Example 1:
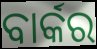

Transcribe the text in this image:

ବାର୍କର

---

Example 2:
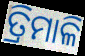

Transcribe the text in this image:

ତ୍ରିମାଳି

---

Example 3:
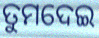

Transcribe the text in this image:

ତୁମଦେଇ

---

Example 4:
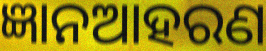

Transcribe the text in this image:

ଜ୍ଞାନଆହରଣ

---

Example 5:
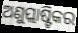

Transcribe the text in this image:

ଅଣୁପ୍ଲାଷ୍ଟିକର